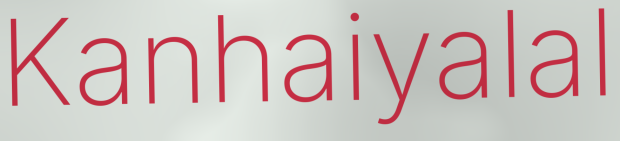
Kanhaiyalal